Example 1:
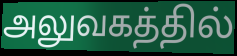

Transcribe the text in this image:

அலுவகத்தில்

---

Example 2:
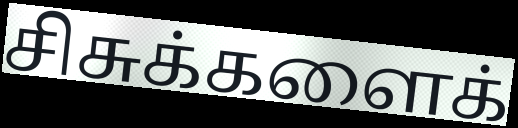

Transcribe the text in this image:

சிசுக்களைக்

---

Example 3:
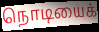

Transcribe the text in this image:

நொடியைக்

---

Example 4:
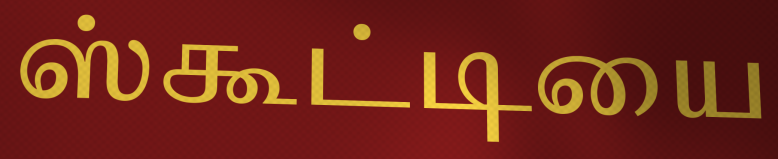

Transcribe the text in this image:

ஸ்கூட்டியை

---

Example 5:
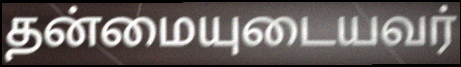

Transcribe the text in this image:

தன்மையுடையவர்